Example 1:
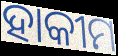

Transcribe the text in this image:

ହାକୀମ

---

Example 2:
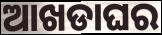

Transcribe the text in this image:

ଆଖଡାଘର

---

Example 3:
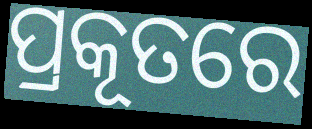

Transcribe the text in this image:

ପ୍ରକୂତରେ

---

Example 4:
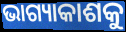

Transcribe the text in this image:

ଭାଗ୍ୟାକାଶକୁ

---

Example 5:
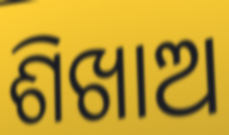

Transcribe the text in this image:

ଶିଖାଅ